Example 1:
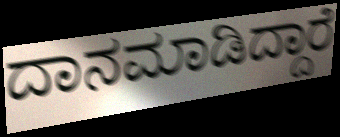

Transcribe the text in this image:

ದಾನಮಾಡಿದ್ದಾರೆ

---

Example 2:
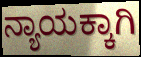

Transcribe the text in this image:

ನ್ಯಾಯಕ್ಕಾಗಿ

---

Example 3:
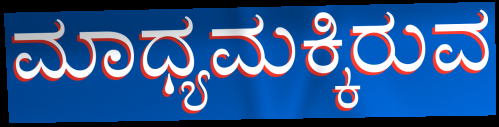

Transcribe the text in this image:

ಮಾಧ್ಯಮಕ್ಕಿರುವ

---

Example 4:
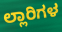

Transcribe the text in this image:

ಲ್ಲಾರಿಗಳ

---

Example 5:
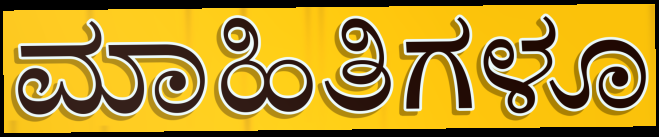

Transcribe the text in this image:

ಮಾಹಿತಿಗಳೂ